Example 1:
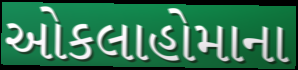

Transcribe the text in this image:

ઓકલાહોમાના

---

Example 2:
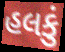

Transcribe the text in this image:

હલકું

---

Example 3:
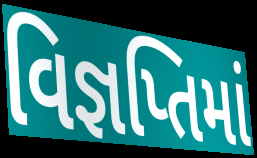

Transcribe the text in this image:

વિજ્ઞપ્તિમાં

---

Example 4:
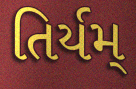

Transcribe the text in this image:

તિર્યમ્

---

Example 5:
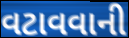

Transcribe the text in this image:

વટાવવાની